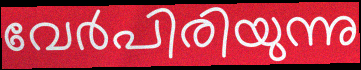
വേർപിരിയുന്നു